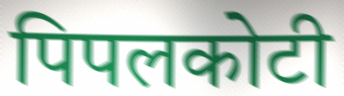
पिपलकोटी